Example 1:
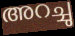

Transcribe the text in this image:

അറച്ചു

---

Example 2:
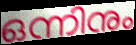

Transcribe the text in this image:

ഒന്നിനും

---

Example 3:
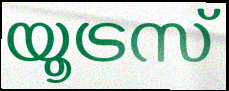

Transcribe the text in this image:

യൂട്രസ്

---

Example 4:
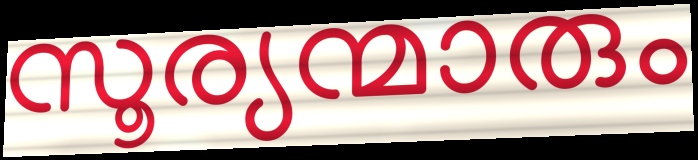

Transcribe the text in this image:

സൂര്യന്മാരും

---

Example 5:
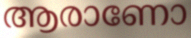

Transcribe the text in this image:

ആരാണോ